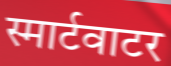
स्मार्टवाटर